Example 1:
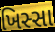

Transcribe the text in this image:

ખિસ્સા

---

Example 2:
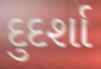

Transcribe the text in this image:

દુદર્શા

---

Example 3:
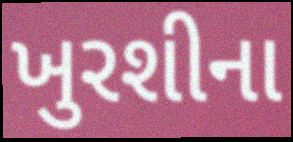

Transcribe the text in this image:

ખુરશીના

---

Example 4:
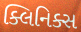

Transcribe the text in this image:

ક્લિનિક્સ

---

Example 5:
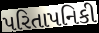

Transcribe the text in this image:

પરિતાપનિકી